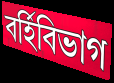
বর্হিবিভাগ